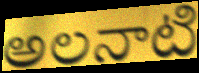
అలనాటి